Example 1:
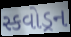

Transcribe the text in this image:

સ્કવોડ્રન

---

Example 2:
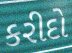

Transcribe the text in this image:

કરીદો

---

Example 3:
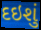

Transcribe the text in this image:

દઇશું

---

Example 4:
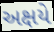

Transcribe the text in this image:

અક્ષયે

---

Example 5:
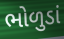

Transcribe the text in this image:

ભોળુડાં